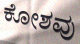
ಕೋಶವು